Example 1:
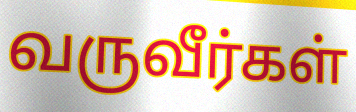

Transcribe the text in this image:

வருவீர்கள்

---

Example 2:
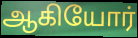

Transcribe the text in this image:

ஆகியோர்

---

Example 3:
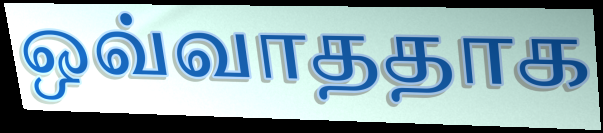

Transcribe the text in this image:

ஒவ்வாததாக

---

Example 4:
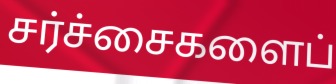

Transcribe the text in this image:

சர்ச்சைகளைப்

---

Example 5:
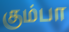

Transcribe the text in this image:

கும்பா